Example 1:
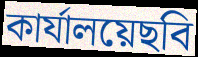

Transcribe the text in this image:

কার্যালয়েছবি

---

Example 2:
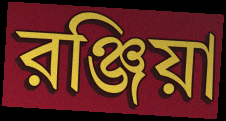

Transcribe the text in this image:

রঞ্জিয়া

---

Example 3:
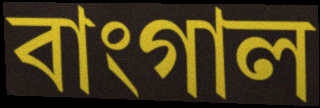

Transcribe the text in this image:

বাংগাল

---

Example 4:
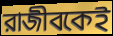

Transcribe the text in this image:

রাজীবকেই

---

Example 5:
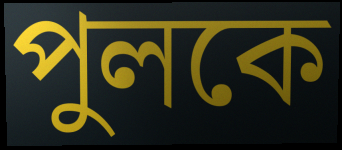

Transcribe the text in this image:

পুলকে